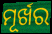
ମୂର୍ଖର